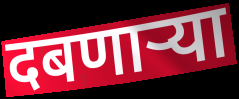
दबणाऱ्या